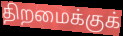
திறமைக்குக்